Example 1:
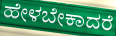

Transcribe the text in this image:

ಹೇಳಬೇಕಾದರೆ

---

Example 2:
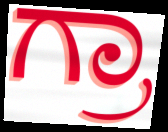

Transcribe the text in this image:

ಗ್ರಾ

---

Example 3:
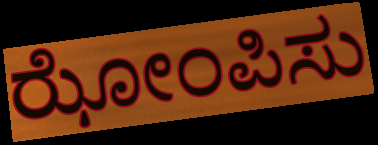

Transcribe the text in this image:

ಝೋಂಪಿಸು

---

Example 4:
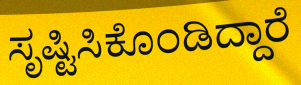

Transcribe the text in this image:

ಸೃಷ್ಟಿಸಿಕೊಂಡಿದ್ದಾರೆ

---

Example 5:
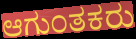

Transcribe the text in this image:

ಆಗುಂತಕರು